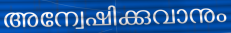
അന്വേഷിക്കുവാനും